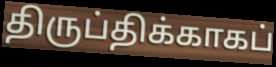
திருப்திக்காகப்